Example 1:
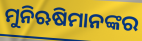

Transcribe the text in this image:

ମୁନିଋଷିମାନଙ୍କର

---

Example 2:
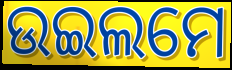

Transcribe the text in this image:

ଉଇଲମେ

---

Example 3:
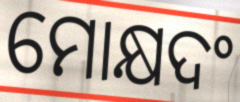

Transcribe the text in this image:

ମୋକ୍ଷଦଂ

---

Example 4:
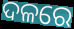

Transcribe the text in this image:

ଦଳରେ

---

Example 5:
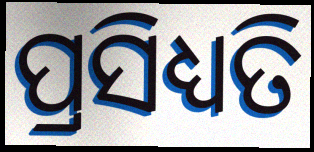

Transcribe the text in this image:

ପ୍ରସିଧ୍ୟତି